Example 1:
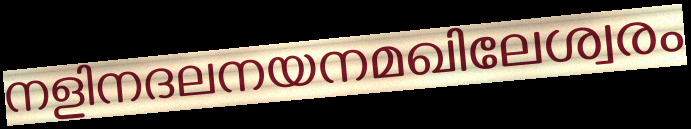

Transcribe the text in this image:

നളിനദലനയനമഖിലേശ്വരം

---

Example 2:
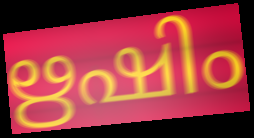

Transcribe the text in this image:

ഋഷിം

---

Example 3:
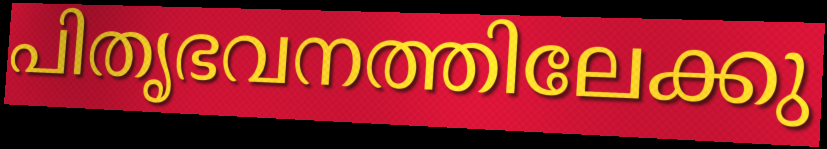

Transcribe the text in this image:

പിതൃഭവനത്തിലേക്കു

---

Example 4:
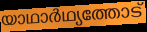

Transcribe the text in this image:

യാഥാർഥ്യത്തോട്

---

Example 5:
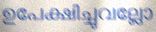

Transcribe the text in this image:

ഉപേക്ഷിച്ചുവല്ലോ